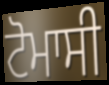
ਟੋਮਾਸੀ